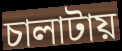
চালাটায়